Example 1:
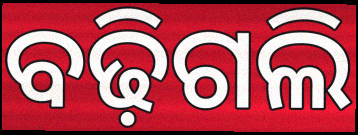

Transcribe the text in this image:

ବଢ଼ିଗଲି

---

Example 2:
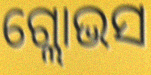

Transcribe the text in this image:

ଗ୍ଲୋଭସ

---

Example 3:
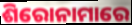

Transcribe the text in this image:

ଶିରୋନାମାରେ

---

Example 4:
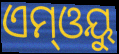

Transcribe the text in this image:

ଏମ୍ଓୟୁ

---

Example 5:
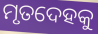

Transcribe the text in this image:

ମୃତଦେହକୁ